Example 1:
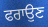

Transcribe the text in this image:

ਫਰਾਉਣ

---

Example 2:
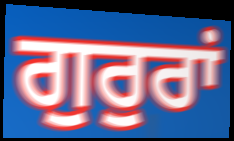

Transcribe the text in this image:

ਗੁਰੁਰਾਂ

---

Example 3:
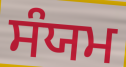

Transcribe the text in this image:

ਸੰਯਮ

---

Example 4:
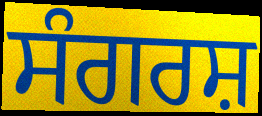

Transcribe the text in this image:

ਸੰਗਰਸ਼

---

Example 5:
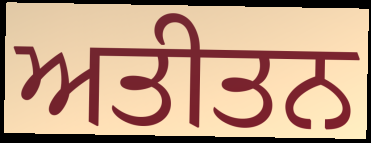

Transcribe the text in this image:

ਅਤੀਤਨ